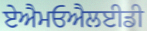
ਏਐਮਓਐਲਈਡੀ